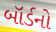
બૉર્ડનો